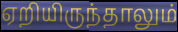
ஏறியிருந்தாலும்